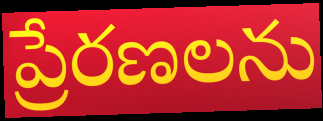
ప్రేరణలను